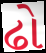
ઢો